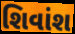
શિવાંશ